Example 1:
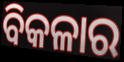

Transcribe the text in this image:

ବିକଳାର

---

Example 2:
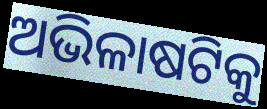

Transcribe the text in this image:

ଅଭିଳାଷଟିକୁ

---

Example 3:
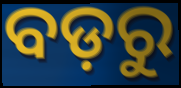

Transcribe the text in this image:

ବଡ଼ରୁ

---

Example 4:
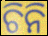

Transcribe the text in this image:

ଚିନି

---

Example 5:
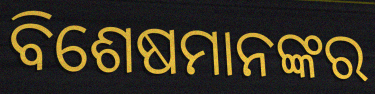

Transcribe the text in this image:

ବିଶେଷମାନଙ୍କର